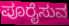
ಪೂರೈಸುವ